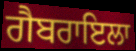
ਗੈਬਰਾਇਲਾ